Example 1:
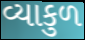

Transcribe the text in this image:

વ્યાકુળ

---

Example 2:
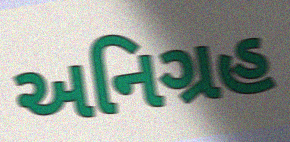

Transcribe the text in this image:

અનિગ્રહ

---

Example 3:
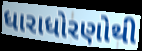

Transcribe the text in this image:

ધારાધોરણોથી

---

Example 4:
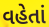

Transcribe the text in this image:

વહેતાં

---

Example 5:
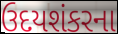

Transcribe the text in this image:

ઉદયશંકરના